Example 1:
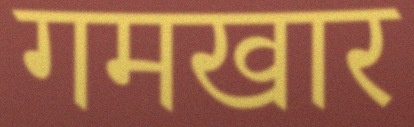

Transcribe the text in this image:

गमखार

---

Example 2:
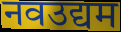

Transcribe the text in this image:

नवउद्यम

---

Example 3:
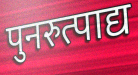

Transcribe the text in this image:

पुनरुत्पाद्य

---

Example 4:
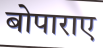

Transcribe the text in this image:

बोपाराए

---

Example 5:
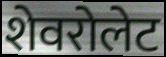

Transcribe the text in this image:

शेवरोलेट